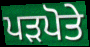
ਪੜਪੋਤੇ